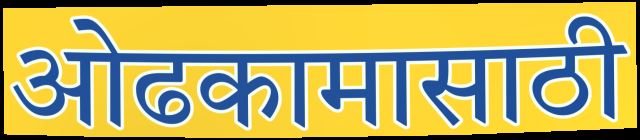
ओढकामासाठी